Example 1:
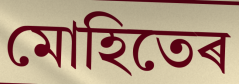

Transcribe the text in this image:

মোহিতেৰ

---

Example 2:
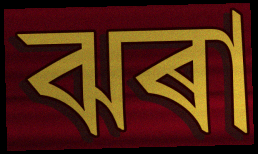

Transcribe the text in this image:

ঝৰা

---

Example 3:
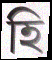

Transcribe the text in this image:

হি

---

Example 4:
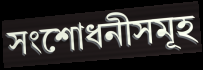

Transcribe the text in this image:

সংশোধনীসমূহ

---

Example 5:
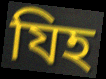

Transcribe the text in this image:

যিহ